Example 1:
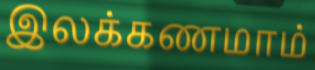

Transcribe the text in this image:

இலக்கணமாம்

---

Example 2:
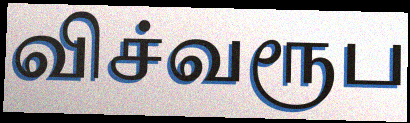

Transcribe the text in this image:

விச்வரூப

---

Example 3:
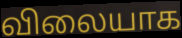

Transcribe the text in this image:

விலையாக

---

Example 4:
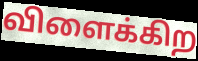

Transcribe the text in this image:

விளைக்கிற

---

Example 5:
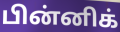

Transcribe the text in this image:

பின்னிக்